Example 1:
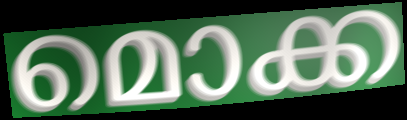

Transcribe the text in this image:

മൊക്ക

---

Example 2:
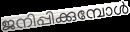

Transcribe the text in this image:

ജനിപ്പിക്കുമ്പോൾ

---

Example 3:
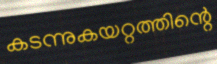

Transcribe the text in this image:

കടന്നുകയറ്റത്തിന്റെ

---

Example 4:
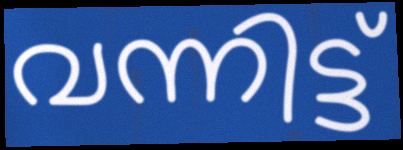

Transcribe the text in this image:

വന്നിട്ട്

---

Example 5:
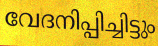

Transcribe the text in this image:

വേദനിപ്പിച്ചിട്ടും